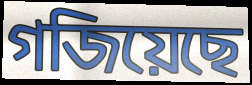
গজিয়েছে